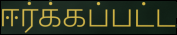
ஈர்க்கப்பட்ட